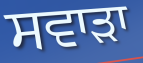
ਸਵਾੜਾ